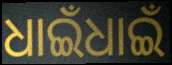
ଧାଇଁଧାଇଁ